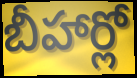
బీహార్లో